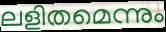
ലളിതമെന്നും